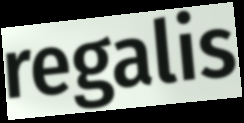
regalis